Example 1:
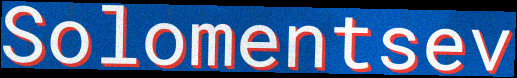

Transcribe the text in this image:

Solomentsev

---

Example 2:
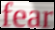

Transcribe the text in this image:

fear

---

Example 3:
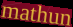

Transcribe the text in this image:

mathun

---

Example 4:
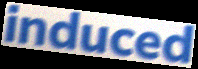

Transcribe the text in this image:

induced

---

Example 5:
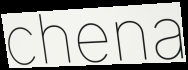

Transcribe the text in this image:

chena